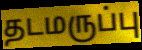
தடமருப்பு